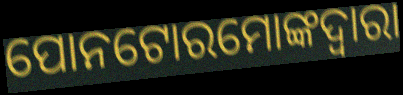
ପୋନଟୋରମୋଙ୍କଦ୍ୱାରା